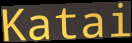
Katai